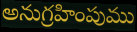
అనుగ్రహింపుము